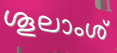
ശൂലാംശ്